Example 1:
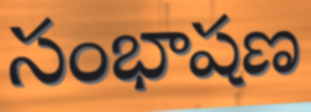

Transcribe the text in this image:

సంభాషణ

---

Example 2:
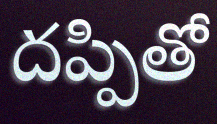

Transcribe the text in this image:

దప్పితో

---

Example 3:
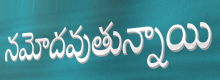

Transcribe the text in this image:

నమోదవుతున్నాయి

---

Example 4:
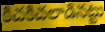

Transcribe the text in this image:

కిచకిచలాడినట్టు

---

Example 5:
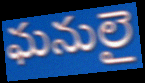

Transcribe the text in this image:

ఘనులై